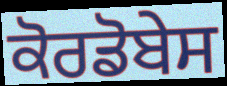
ਕੋਰਡੋਬੇਸ